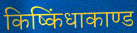
किष्किंधाकाण्ड